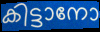
കിട്ടാനോ